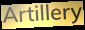
Artillery